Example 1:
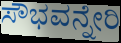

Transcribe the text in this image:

ಸೌಭವನ್ನೇರಿ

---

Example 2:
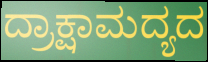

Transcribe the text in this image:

ದ್ರಾಕ್ಷಾಮದ್ಯದ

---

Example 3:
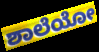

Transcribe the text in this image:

ಶಾಲೆಯೋ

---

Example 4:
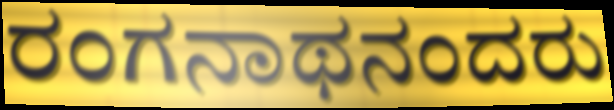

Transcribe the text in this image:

ರಂಗನಾಥನಂದರು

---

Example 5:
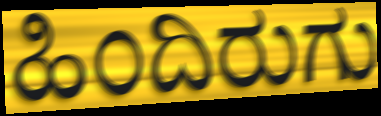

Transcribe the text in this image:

ಹಿಂದಿರುಗು